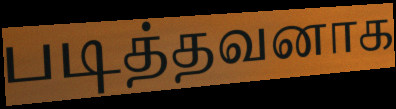
படித்தவனாக